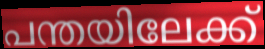
പന്തയിലേക്ക്